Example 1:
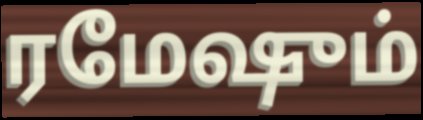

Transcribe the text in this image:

ரமேஷும்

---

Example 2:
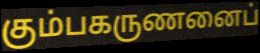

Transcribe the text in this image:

கும்பகருணனைப்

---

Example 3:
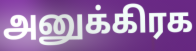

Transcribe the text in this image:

அனுக்கிரக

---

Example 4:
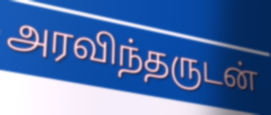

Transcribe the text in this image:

அரவிந்தருடன்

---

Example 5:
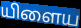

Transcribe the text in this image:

யிளைய